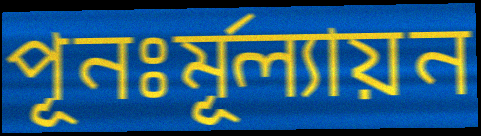
পূনঃর্মূল্যায়ন